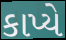
કાપ્યે